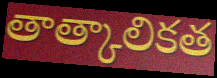
తాత్కాలికత